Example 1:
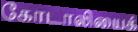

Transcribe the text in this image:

கோடாலியைக்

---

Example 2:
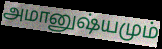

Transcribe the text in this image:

அமானுஷ்யமும்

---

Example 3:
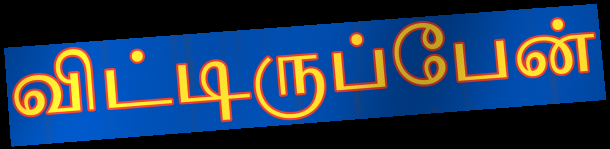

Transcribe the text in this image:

விட்டிருப்பேன்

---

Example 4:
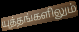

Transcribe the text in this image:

யுத்தங்களிலும்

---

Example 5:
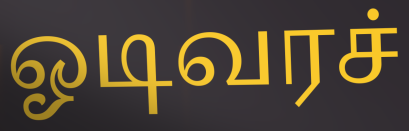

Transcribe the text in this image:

ஓடிவரச்